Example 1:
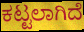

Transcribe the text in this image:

ಕಟ್ಟಲಾಗಿದೆ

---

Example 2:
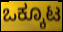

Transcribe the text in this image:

ಒಕ್ಕೂಟ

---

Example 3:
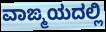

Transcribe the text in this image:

ವಾಙ್ಮಯದಲ್ಲಿ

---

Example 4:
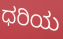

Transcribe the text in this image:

ಧರಿಯ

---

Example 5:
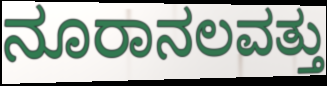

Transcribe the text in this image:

ನೂರಾನಲವತ್ತು